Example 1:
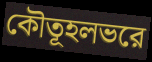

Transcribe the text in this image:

কৌতূহলভরে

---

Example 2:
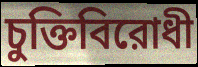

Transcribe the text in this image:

চুক্তিবিরোধী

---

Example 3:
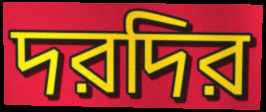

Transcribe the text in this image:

দরদির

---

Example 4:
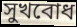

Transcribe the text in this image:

সুখবোধ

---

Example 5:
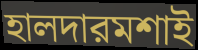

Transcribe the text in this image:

হালদারমশাই